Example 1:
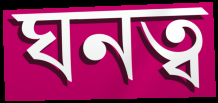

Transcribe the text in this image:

ঘনত্ব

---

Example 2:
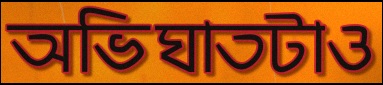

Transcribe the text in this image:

অভিঘাতটাও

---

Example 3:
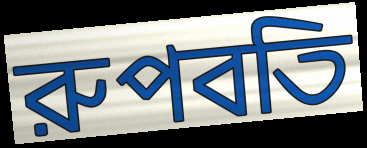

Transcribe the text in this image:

রুপবতি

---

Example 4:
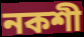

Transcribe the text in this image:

নকশী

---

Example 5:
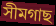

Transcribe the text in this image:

সীমগাছ